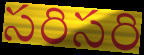
సరిసరి